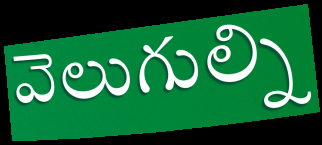
వెలుగుల్ని